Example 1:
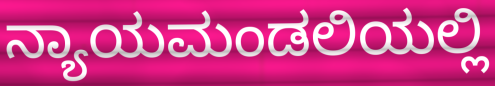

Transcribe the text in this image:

ನ್ಯಾಯಮಂಡಲಿಯಲ್ಲಿ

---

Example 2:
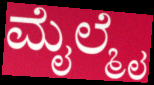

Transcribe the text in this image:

ಮೈಲ್ಮೈ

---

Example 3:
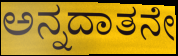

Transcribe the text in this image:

ಅನ್ನದಾತನೇ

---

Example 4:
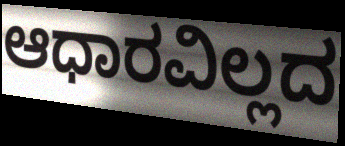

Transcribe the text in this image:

ಆಧಾರವಿಲ್ಲದ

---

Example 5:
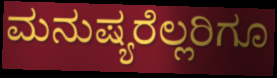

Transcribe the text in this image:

ಮನುಷ್ಯರೆಲ್ಲರಿಗೂ